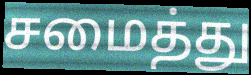
சமைத்து